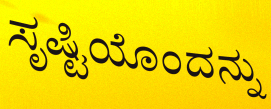
ಸೃಷ್ಟಿಯೊಂದನ್ನು